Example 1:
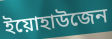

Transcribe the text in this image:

ইয়োহাউজেন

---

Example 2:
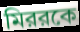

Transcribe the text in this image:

মিররকে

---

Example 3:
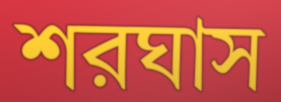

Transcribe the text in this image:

শরঘাস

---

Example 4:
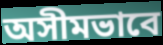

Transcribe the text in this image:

অসীমভাবে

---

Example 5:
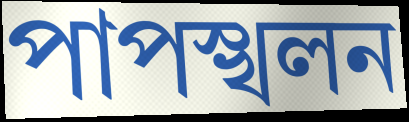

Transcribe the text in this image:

পাপস্খলন